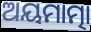
ଅୟମାତ୍ମା